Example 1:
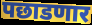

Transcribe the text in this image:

पछाडणार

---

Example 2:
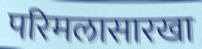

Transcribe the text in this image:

परिमलासारखा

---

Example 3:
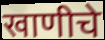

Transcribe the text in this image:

खाणीचे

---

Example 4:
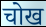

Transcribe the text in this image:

चोख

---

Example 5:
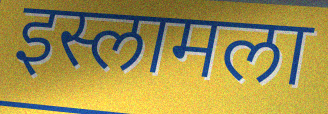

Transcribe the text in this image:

इस्लामला